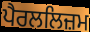
ਪੈਰਲਲਿਜ਼ਮ